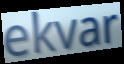
ekvar